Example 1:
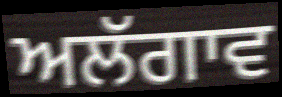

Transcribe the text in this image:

ਅਲੱਗਾਵ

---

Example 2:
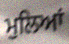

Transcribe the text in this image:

ਮੁਲਿਆਂ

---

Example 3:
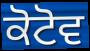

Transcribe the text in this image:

ਕੋਟੋਵ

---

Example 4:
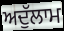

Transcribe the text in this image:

ਅਦੁੱਲਾਮ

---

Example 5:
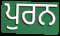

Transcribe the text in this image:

ਪੁਰਨ